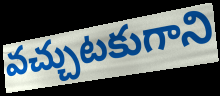
వచ్చుటకుగాని